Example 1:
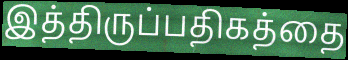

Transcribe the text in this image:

இத்திருப்பதிகத்தை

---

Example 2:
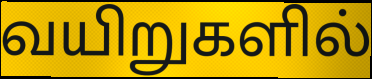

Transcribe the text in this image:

வயிறுகளில்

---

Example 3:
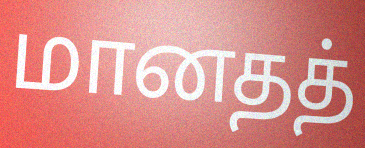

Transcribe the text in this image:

மானதத்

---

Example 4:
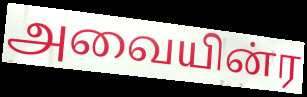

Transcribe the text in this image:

அவையின்ர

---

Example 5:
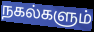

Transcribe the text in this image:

நகல்களும்